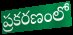
ప్రకరణంలో